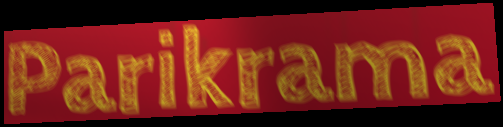
Parikrama